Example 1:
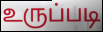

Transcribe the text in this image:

உருப்படி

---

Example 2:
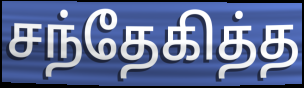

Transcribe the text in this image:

சந்தேகித்த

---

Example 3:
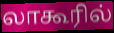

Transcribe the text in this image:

லாகூரில்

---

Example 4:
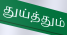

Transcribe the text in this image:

துய்த்தும்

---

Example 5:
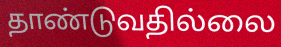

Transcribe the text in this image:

தாண்டுவதில்லை